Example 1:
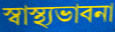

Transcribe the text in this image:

স্বাস্থ্যভাবনা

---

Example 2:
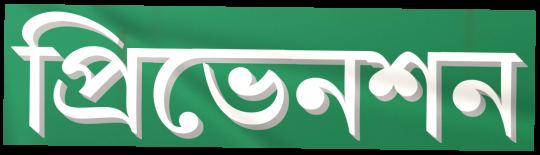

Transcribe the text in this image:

প্রিভেনশন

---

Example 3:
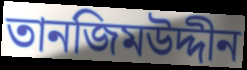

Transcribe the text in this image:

তানজিমউদ্দীন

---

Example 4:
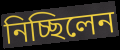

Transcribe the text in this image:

নিচ্ছিলেন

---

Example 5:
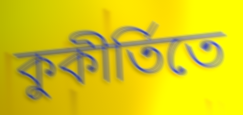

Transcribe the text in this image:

কুকীর্তিতে